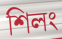
শিলং